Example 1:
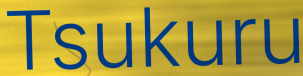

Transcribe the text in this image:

Tsukuru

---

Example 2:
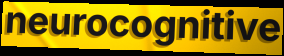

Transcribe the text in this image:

neurocognitive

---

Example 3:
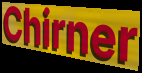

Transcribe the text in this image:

Chirner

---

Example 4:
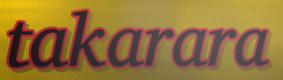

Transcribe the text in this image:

takarara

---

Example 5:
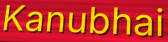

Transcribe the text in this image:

Kanubhai